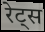
रेट्स